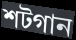
শটগান